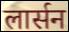
लार्सन